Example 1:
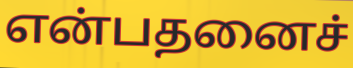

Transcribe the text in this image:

என்பதனைச்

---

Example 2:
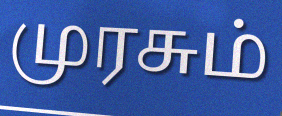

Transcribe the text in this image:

முரசும்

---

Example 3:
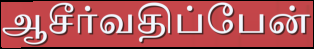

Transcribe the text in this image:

ஆசீர்வதிப்பேன்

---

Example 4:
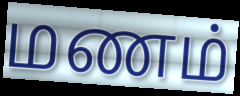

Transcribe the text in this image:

மணம்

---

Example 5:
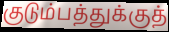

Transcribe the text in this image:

குடும்பத்துக்குத்